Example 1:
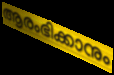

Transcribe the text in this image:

ആരംഭിക്കാനും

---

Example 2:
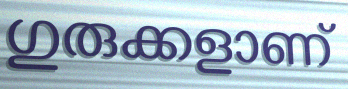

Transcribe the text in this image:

ഗുരുക്കളാണ്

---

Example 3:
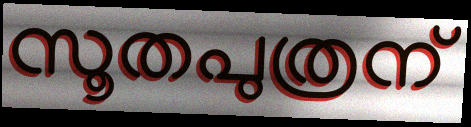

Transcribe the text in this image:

സൂതപുത്രന്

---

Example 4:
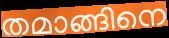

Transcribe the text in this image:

തമാങ്ങിനെ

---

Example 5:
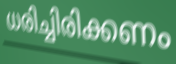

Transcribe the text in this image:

ധരിച്ചിരിക്കണം